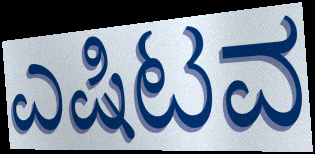
ಎಷಿಟವ